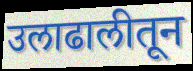
उलाढालीतून